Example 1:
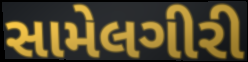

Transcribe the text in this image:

સામેલગીરી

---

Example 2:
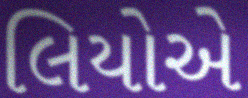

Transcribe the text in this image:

લિયોએ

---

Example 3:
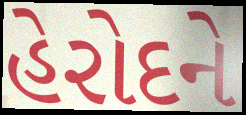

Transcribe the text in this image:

હેરોદને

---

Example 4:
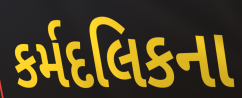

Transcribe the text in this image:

કર્મદલિકના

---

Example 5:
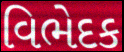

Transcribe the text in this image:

વિભેદક